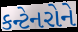
કન્ટેનરોને